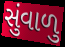
સુંવાળુ